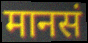
मानसं